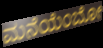
ಮನೆಯೆಂಬೋ